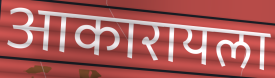
आकारायला